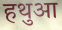
हथुआ